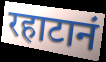
रहाटानं